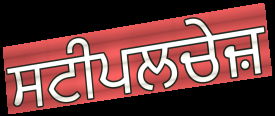
ਸਟੀਪਲਚੇਜ਼